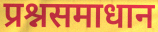
प्रश्नसमाधान